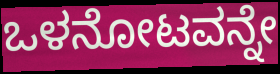
ಒಳನೋಟವನ್ನೇ